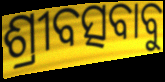
ଶ୍ରୀବତ୍ସବାବୁ